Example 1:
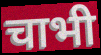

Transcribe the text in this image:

चाभी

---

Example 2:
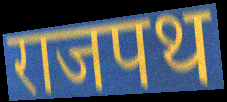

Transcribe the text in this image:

राजपथ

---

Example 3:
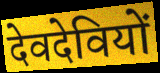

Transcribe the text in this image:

देवदेवियों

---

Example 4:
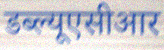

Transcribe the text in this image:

डब्ल्यूएसीआर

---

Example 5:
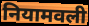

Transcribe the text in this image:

नियामवली